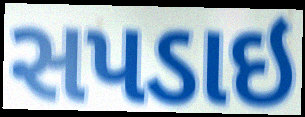
સપડાઇ